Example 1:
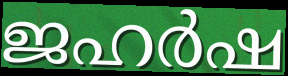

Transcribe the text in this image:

ജഹർഷ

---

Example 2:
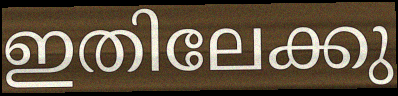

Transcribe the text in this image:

ഇതിലേക്കു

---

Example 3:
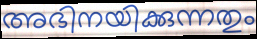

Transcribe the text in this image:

അഭിനയിക്കുന്നതും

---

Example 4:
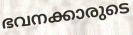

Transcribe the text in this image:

ഭവനക്കാരുടെ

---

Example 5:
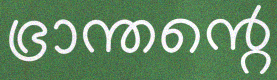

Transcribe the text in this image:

ഭ്രാന്തന്റെ